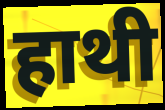
हाथी